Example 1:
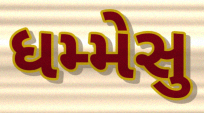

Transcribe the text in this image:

ધમ્મેસુ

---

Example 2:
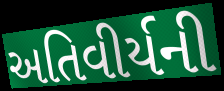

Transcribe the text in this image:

અતિવીર્યની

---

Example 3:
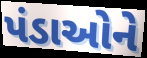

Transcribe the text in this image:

પંડાઓને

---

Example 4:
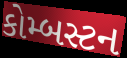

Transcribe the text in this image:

કોમ્બસ્ટન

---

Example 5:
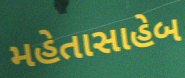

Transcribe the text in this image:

મહેતાસાહેબ